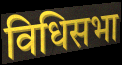
विधिसभा